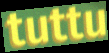
tuttu